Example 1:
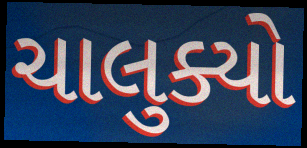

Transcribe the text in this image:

ચાલુક્યો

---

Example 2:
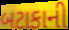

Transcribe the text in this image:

બટાકાની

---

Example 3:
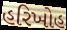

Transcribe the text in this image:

હરિખોહ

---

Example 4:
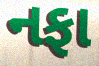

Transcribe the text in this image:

નફા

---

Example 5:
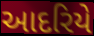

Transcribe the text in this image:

આદરિયે